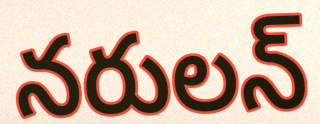
నరులన్